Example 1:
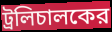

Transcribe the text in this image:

ট্রলিচালকের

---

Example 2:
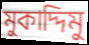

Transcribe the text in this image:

মুকাদ্দিমু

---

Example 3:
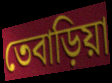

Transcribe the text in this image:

তেবাড়িয়া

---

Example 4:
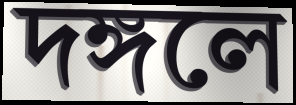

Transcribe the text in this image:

দঙ্গলে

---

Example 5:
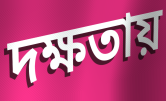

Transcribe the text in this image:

দক্ষতায়